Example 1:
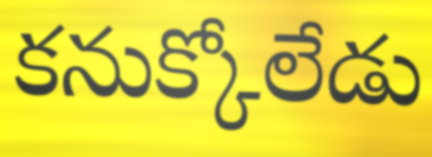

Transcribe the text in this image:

కనుక్కోలేడు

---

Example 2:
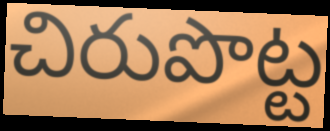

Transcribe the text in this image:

చిరుపొట్ట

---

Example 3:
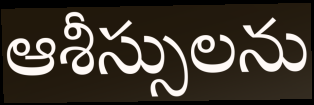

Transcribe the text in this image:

ఆశీస్సులను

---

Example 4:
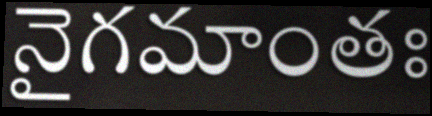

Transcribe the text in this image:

నైగమాంతః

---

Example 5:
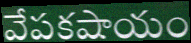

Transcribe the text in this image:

వేపకషాయం